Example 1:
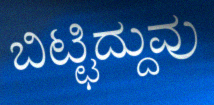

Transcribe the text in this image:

ಬಿಟ್ಟಿದ್ದುವು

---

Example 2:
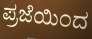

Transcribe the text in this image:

ಪ್ರಜೆಯಿಂದ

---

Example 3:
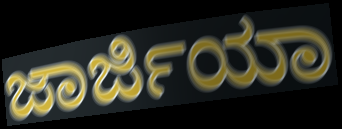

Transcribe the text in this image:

ಜಾರ್ಜಿಯಾ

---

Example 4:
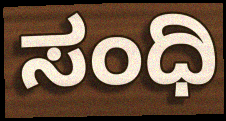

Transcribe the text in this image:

ಸಂಧಿ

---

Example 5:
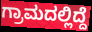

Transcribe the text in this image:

ಗ್ರಾಮದಲ್ಲಿದ್ದೆ